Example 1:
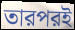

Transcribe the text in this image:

তারপরই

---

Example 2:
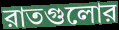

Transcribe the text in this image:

রাতগুলোর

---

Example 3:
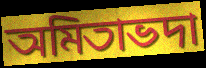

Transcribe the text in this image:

অমিতাভদা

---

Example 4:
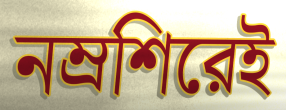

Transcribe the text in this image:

নম্রশিরেই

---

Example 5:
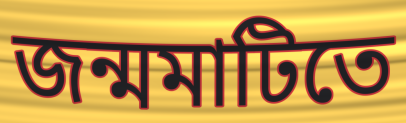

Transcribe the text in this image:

জন্মমাটিতে